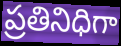
ప్రతినిధిగా